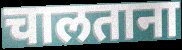
चालताना